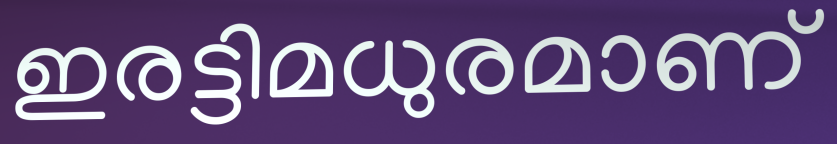
ഇരട്ടിമധുരമാണ്